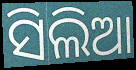
ସିଲିଆ